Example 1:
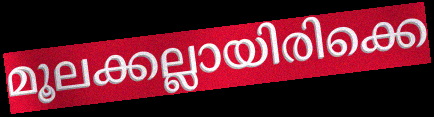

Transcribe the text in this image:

മൂലക്കല്ലായിരിക്കെ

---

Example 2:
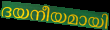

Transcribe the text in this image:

ദയനീയമായി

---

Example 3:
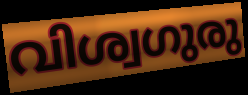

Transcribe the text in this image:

വിശ്വഗുരു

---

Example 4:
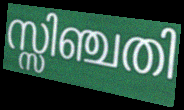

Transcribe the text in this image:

സ്സിഞ്ചതി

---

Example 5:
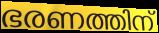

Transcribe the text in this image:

ഭരണത്തിന്